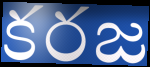
కరజ